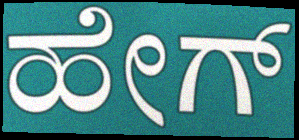
ಹೇಗ್